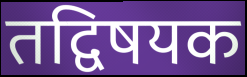
तद्विषयक